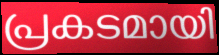
പ്രകടമായി